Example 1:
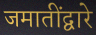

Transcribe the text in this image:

जमातींद्वारे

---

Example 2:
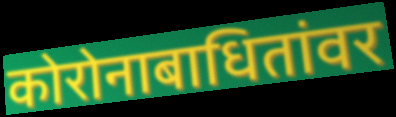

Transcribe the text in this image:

कोरोनाबाधितांवर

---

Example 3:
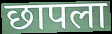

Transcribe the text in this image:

छापला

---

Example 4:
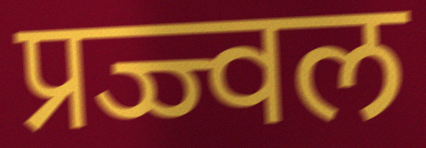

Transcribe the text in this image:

प्रज्ज्वल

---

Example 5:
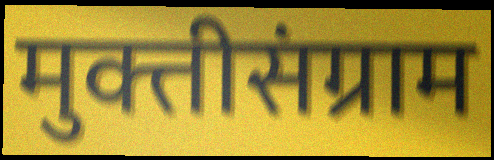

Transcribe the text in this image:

मुक्तीसंग्राम